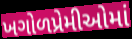
ખગોળપ્રેમીઓમાં